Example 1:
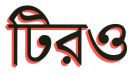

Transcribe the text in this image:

টিরও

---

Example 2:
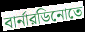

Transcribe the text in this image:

বার্নারডিনোতে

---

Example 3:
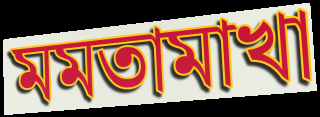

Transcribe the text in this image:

মমতামাখা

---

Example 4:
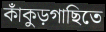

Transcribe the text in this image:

কাঁকুড়গাছিতে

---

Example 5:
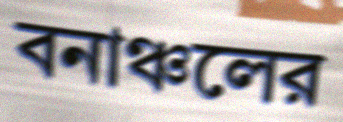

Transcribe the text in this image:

বনাঞ্চলের